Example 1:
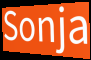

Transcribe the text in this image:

Sonja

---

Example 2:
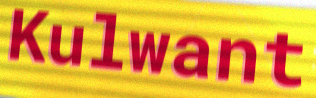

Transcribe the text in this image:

Kulwant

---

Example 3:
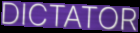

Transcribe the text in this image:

DICTATOR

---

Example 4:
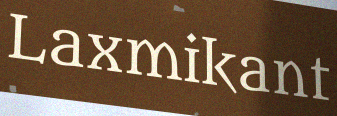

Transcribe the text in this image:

Laxmikant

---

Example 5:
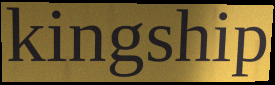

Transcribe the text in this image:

kingship